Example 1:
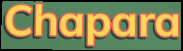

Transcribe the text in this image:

Chapara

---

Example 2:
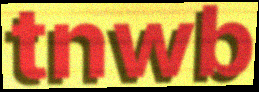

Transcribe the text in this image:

tnwb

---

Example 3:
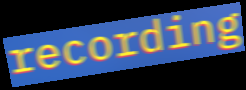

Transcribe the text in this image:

recording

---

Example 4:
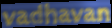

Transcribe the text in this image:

vadhavan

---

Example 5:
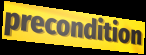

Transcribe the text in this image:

precondition